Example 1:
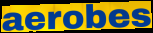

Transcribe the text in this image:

aerobes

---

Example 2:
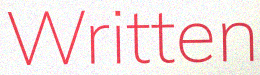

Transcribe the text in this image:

Written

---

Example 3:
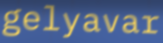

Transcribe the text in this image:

gelyavar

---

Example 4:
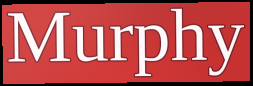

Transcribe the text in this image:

Murphy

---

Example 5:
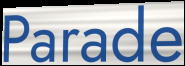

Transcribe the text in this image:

Parade